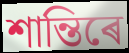
শান্তিৰে